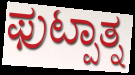
ಫುಟ್ಪಾತ್ನ